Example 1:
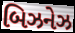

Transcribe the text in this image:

બિઝનેઝ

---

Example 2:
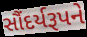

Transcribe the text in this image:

સૌંદર્યરૂપને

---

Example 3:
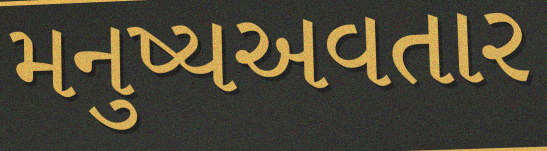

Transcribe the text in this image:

મનુષ્યઅવતાર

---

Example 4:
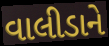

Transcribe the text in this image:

વાલીડાને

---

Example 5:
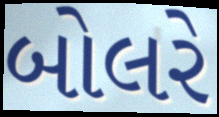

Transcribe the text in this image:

બોલરે